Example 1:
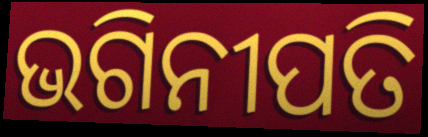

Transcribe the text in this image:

ଭଗିନୀପତି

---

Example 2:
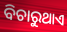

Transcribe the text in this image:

ବିଚାରୁଥାଏ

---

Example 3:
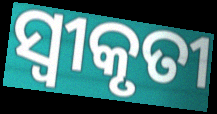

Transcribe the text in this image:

ସ୍ୱୀକୃତୀ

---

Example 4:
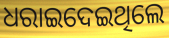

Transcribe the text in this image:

ଧରାଇଦେଇଥିଲେ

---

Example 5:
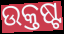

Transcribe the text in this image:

ଉକ୍ତଷ୍ଟ